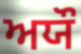
ਅਯੌ